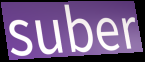
suber